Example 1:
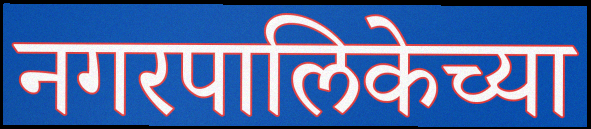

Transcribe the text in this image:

नगरपालिकेच्या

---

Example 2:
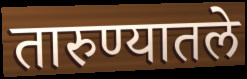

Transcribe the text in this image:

तारुण्यातले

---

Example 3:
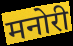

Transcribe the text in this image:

मनोरी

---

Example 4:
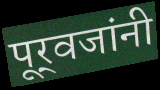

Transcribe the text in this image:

पूर्वजांनी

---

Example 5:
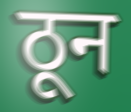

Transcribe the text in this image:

ठून